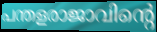
പന്തളരാജാവിന്റെ